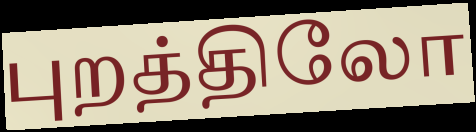
புறத்திலோ